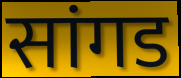
सांगड